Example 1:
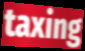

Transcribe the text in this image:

taxing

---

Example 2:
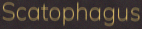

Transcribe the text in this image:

Scatophagus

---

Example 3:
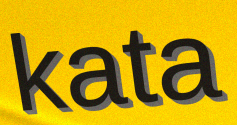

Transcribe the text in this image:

kata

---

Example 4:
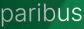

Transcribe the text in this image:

paribus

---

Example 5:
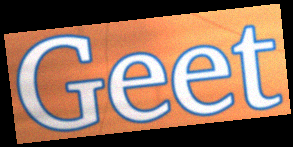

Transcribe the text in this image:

Geet